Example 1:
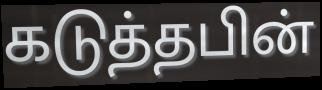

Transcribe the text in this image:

கடுத்தபின்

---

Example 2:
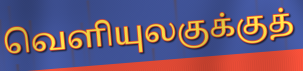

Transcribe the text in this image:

வெளியுலகுக்குத்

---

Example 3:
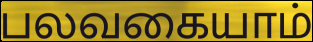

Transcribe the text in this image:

பலவகையாம்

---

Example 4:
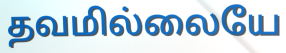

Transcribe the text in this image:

தவமில்லையே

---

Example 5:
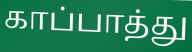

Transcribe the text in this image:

காப்பாத்து